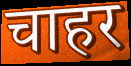
चाहर